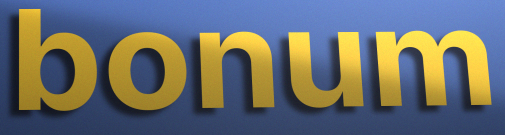
bonum